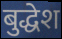
बुद्धेश